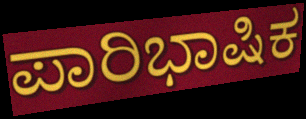
ಪಾರಿಭಾಷಿಕ